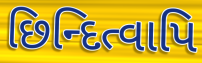
છિન્દિત્વાપિ